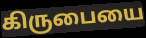
கிருபையை